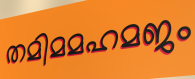
തമിമമഹമജം